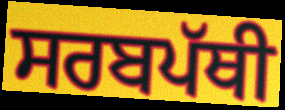
ਸਰਬਪੱਥੀ